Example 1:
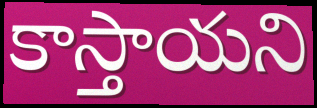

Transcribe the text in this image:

కాస్తాయని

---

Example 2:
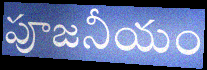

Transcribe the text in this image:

పూజనీయం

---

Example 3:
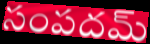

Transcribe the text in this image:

సంపదమ్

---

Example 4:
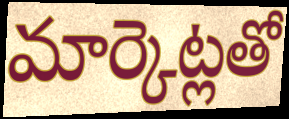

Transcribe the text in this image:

మార్కెట్లతో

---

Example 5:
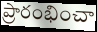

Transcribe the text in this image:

ప్రారంభించా